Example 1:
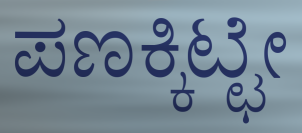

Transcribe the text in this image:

ಪಣಕ್ಕಿಟ್ಟೇ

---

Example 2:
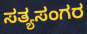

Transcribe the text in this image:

ಸತ್ಯಸಂಗರ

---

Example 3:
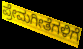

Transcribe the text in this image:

ಪ್ರೇಮಗೀತೆಗಳಿಗೆ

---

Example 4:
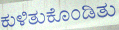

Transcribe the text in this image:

ಕುಳಿತುಕೊಂಡಿತು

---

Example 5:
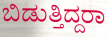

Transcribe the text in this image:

ಬಿಡುತ್ತಿದ್ದರಾ